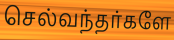
செல்வந்தர்களே